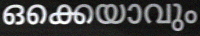
ഒക്കെയാവും